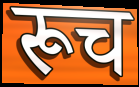
रूच